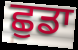
ਛੁਡਾ